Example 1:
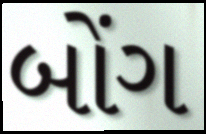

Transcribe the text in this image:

બોંગ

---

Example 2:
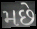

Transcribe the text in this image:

મછે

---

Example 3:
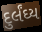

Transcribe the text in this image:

દુર્લંઘ્ય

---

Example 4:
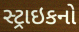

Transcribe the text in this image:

સ્ટ્રાઇકનો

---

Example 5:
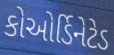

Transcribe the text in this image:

કોઓર્ડિનેટેડ